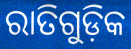
ରାତିଗୁଡ଼ିକ